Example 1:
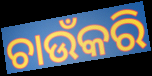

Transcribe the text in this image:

ଚାଉଁକରି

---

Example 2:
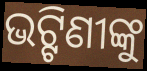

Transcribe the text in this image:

ଭଟ୍ଟିଣୀଙ୍କୁ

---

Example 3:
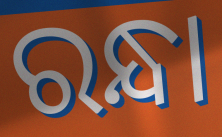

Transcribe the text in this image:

ରନ୍ଧା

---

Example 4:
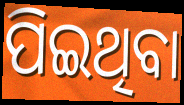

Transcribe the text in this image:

ପିଇଥିବା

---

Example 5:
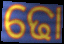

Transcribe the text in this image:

ଢୋ